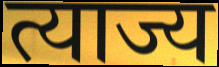
त्याज्य